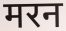
मरन